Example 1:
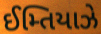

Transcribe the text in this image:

ઈમ્તિયાઝે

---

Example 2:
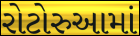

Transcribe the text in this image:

રોટોરુઆમાં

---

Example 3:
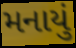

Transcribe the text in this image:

મનાયું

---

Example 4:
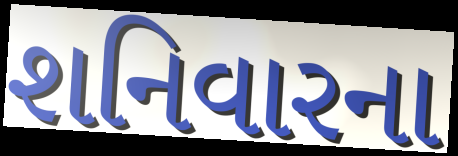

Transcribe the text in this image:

શનિવારના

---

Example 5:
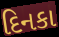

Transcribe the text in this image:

દિનકા